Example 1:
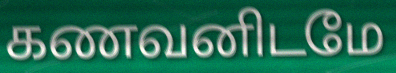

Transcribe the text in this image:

கணவனிடமே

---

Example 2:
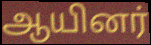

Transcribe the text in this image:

ஆயினர்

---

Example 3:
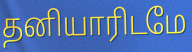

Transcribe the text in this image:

தனியாரிடமே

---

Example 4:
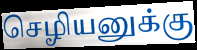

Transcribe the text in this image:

செழியனுக்கு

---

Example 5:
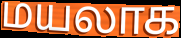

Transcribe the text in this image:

மயலாக